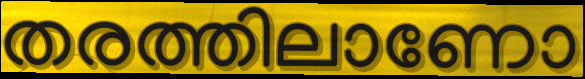
തരത്തിലാണോ